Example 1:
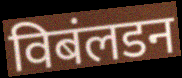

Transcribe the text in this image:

विबंलडन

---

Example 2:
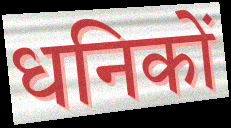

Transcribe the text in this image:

धनिकों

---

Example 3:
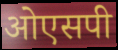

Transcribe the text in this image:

ओएसपी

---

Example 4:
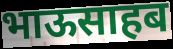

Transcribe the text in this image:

भाऊसाहब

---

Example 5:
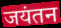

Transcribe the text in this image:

जयंतन